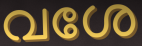
വശേ